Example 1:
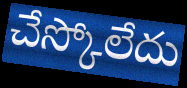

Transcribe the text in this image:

చేస్కోలేదు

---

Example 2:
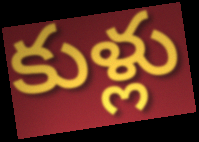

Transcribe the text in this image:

కుళ్లు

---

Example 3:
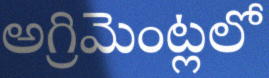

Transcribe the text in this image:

అగ్రిమెంట్లలో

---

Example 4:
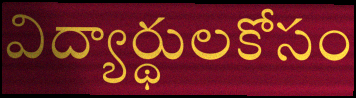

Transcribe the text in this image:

విద్యార్థులకోసం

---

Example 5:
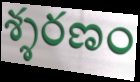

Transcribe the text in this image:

శ్శరణం